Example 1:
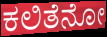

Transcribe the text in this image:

ಕಲಿತೆನೋ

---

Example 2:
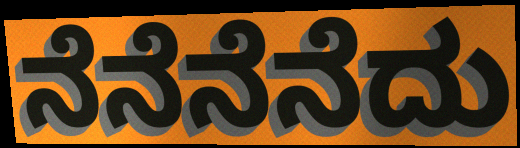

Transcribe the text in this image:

ನೆನೆನೆನೆದು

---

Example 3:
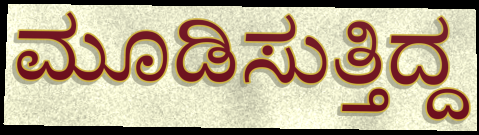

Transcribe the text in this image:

ಮೂಡಿಸುತ್ತಿದ್ದ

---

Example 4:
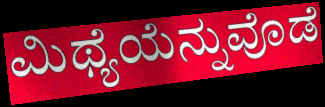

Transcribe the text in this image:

ಮಿಥ್ಯೆಯೆನ್ನುವೊಡೆ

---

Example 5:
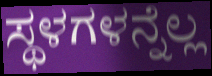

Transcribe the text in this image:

ಸ್ಥಳಗಳನ್ನೆಲ್ಲ